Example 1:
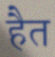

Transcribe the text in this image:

हैत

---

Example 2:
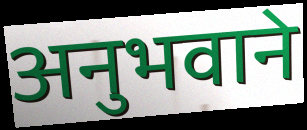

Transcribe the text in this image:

अनुभवाने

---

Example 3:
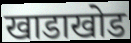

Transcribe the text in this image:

खाडाखोड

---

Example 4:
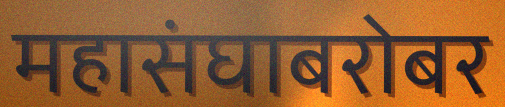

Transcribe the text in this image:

महासंघाबरोबर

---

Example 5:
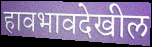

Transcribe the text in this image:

हावभावदेखील